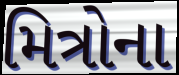
મિત્રોના